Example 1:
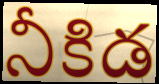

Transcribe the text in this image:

నీకిడ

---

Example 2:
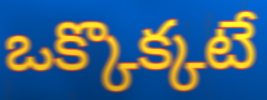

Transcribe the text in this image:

ఒక్కొక్కటే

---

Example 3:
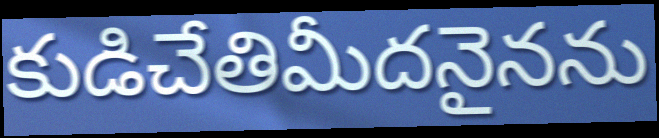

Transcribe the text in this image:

కుడిచేతిమీదనైనను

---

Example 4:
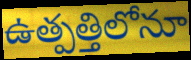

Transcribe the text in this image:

ఉత్పత్తిలోనూ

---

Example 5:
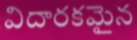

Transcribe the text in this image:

విదారకమైన